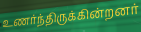
உணர்ந்திருக்கின்றனர்